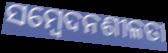
ସମ୍ଵେଦନଶୀଳତା